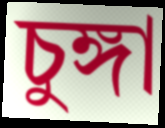
চুঙ্গা